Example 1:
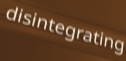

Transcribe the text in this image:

disintegrating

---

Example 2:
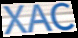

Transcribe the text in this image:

XAC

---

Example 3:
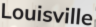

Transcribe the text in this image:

Louisville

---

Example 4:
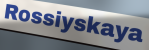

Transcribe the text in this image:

Rossiyskaya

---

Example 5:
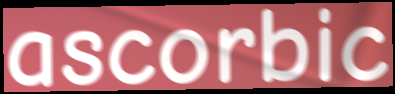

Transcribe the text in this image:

ascorbic